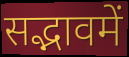
सद्भावमें